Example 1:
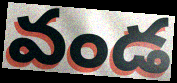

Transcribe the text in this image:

వండ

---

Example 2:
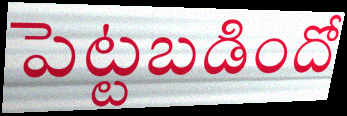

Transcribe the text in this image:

పెట్టబడిందో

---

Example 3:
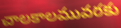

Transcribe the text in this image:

చాలకాలమువరకు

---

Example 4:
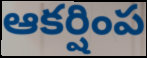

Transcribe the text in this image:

ఆకర్షింప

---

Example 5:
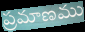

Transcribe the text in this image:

ప్రమాణము